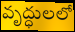
వృద్ధులలో